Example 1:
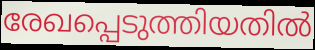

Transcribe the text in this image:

രേഖപ്പെടുത്തിയതിൽ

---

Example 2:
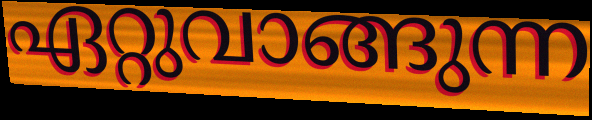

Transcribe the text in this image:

ഏറ്റുവാങ്ങുന്ന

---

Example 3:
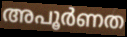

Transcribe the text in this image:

അപൂർണത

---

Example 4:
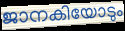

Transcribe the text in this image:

ജാനകിയോടും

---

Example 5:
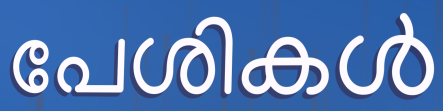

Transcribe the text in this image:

പേശികൾ